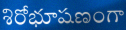
శిరోభూషణంగా